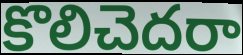
కొలిచెదరా